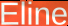
Eline